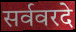
सर्ववरदे